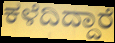
ಕಳೆದಿದ್ದಾರೆ